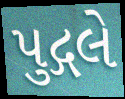
પુદ્ગલે